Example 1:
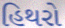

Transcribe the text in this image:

હિથરો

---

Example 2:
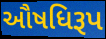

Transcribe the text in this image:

ઔષધિરૂપ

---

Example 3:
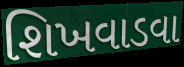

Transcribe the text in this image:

શિખવાડવા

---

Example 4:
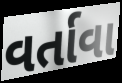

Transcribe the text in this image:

વર્તાવા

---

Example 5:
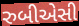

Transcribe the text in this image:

રુબીએસી